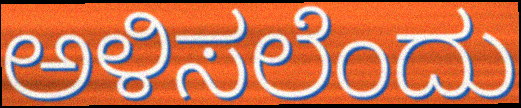
ಅಳಿಸಲೆಂದು